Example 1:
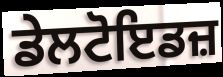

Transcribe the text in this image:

ਡੇਲਟੋਇਡਜ਼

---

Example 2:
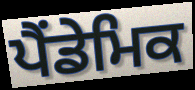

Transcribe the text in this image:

ਪੈਂਡੇਮਿਕ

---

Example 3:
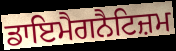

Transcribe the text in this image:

ਡਾਇਮੈਗਨੈਟਿਜ਼ਮ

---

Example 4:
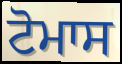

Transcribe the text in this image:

ਟੋਮਾਸ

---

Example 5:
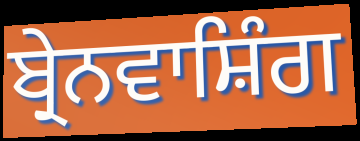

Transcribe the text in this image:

ਬ੍ਰੇਨਵਾਸ਼ਿੰਗ